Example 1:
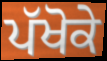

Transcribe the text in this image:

ਪੱਖੋਕੇ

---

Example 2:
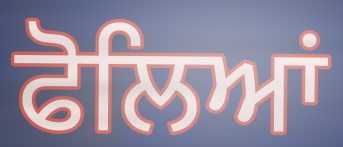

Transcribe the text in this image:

ਫੋਲਿਆਂ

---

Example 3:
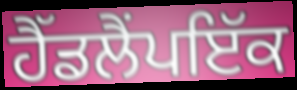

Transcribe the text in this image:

ਹੈੱਡਲੈਂਪਇੱਕ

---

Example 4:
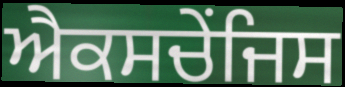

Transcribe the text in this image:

ਐਕਸਚੇਂਜਿਸ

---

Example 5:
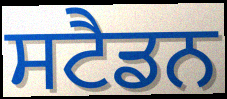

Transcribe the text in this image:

ਸਟੈਡਨ